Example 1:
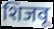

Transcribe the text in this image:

शिजवू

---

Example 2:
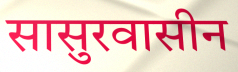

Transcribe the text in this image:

सासुरवासीन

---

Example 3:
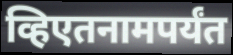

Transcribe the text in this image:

व्हिएतनामपर्यंत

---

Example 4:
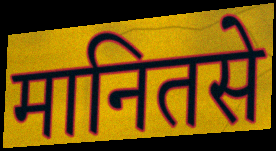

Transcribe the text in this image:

मानितसे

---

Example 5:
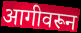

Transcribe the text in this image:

आगीवरून